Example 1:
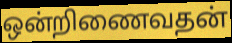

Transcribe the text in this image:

ஒன்றிணைவதன்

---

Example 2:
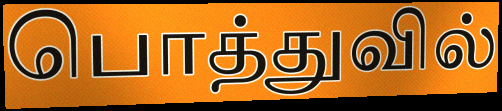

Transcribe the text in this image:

பொத்துவில்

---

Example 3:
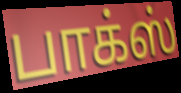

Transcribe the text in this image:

பாக்ஸ்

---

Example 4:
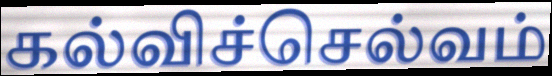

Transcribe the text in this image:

கல்விச்செல்வம்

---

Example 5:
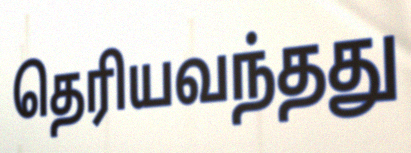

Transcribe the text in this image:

தெரியவந்தது